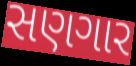
સણગાર